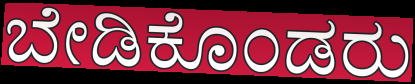
ಬೇಡಿಕೊಂಡರು